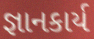
જ્ઞાનકાર્ય